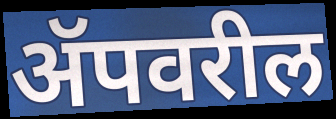
ॲपवरील